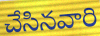
చేసినవారి